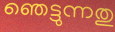
ഞെട്ടുന്നതു